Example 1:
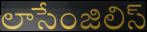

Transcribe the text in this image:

లాసేంజిలిస్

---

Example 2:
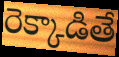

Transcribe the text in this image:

రెక్కాడితే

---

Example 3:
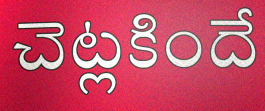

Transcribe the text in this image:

చెట్లకిందే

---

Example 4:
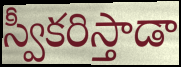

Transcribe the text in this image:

స్వీకరిస్తాడా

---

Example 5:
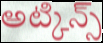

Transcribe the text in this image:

అట్కిన్స్